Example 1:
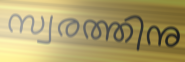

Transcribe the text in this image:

സ്വരത്തിനു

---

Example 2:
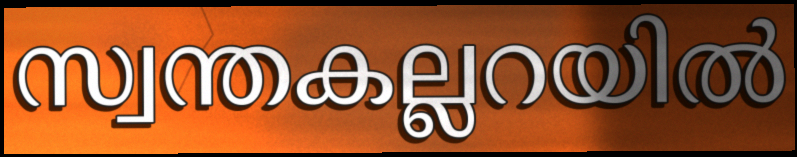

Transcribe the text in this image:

സ്വന്തകല്ലറയിൽ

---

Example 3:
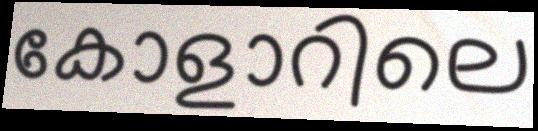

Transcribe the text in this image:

കോളാറിലെ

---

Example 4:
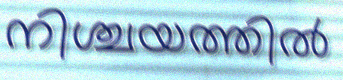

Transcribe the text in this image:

നിശ്ചയത്തിൽ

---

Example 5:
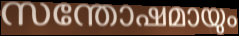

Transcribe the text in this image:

സന്തോഷമായും